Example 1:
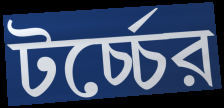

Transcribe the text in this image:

টর্চ্চের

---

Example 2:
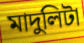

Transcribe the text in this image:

মাদুলিটা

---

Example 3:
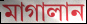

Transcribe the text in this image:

মাগালান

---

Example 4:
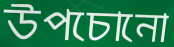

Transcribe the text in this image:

উপচোনো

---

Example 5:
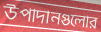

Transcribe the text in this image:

উপাদানগুলোর